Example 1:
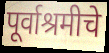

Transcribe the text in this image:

पूर्वाश्रमीचे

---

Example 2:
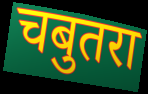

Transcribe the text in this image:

चबुतरा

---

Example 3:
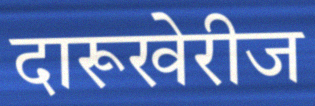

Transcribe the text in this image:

दारूखेरीज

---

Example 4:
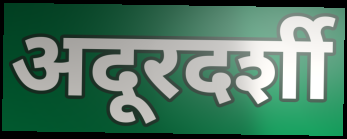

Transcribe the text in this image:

अदूरदर्शी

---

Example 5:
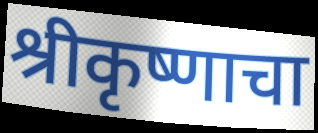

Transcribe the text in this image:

श्रीकृष्णाचा